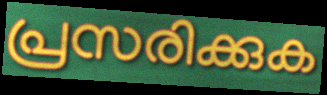
പ്രസരിക്കുക